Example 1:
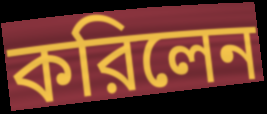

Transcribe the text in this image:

করিলেন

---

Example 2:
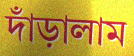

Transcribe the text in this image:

দাঁড়ালাম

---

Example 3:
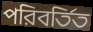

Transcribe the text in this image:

পরিবর্তিত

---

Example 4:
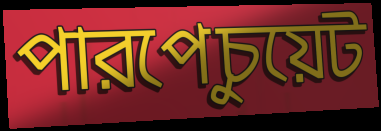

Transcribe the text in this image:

পারপেচুয়েট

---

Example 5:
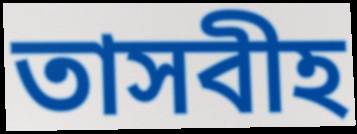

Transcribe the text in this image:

তাসবীহ